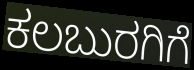
ಕಲಬುರಗಿಗೆ